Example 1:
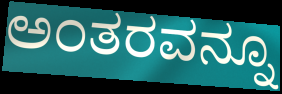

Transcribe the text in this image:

ಅಂತರವನ್ನೂ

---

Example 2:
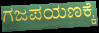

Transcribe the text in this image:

ಗಜಪಯಣಕ್ಕೆ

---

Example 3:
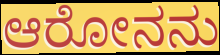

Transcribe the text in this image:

ಆರೋನನು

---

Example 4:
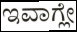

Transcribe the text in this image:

ಇವಾಗ್ಲೇ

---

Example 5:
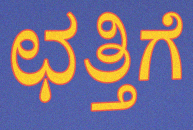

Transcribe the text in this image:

ಛತ್ತಿಗೆ